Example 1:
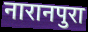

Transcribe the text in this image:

नारानपुरा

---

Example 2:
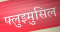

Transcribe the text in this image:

फ्लुइमुसिल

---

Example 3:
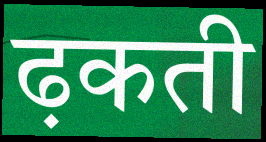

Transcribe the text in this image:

ढ़कती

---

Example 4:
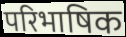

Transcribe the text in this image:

परिभाषिक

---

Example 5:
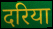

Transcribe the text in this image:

दरिया